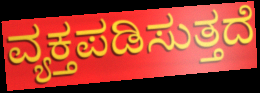
ವ್ಯಕ್ತಪಡಿಸುತ್ತದೆ